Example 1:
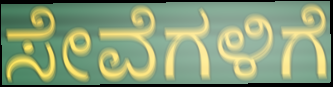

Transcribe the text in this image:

ಸೇವೆಗಳಿಗೆ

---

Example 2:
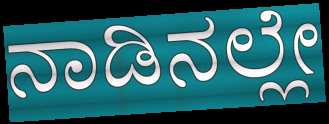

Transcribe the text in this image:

ನಾಡಿನಲ್ಲೇ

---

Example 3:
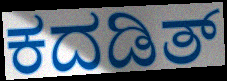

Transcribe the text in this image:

ಕದಡಿತ್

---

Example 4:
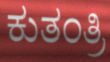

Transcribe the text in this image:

ಕುತಂತ್ರಿ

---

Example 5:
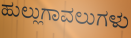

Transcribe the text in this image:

ಹುಲ್ಲುಗಾವಲುಗಳು